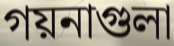
গয়নাগুলা